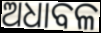
ଅଧାବଳ